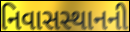
નિવાસસ્થાનની